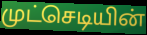
முட்செடியின்